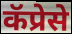
कॅप्रेसे